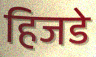
हिजडे